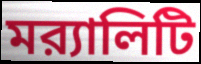
মর‍্যালিটি